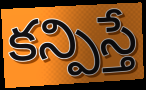
కన్పిస్తే